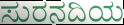
ಸುರನದಿಯ